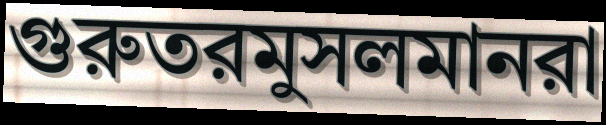
গুরুতরমুসলমানরা